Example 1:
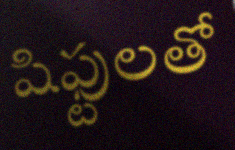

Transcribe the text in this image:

షిఫ్టులతో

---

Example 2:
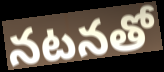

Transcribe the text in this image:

నటనతో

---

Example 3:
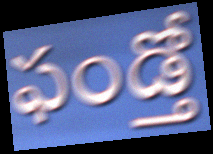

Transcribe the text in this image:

ఫండ్తో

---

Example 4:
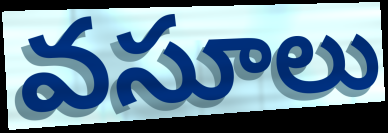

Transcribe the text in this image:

వసూలు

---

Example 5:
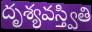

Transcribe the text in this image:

దృశ్యవస్త్వితి